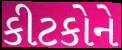
કીટકોને